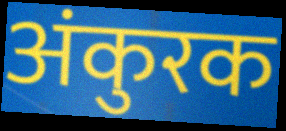
अंकुरक